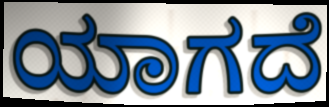
ಯಾಗದೆ